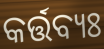
କର୍ତ୍ତବ୍ୟଃ